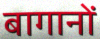
बागानों